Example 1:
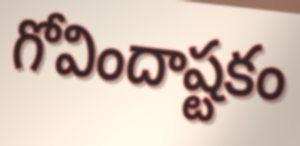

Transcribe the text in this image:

గోవిందాష్టకం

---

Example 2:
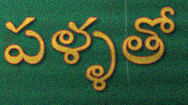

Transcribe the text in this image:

పళ్ళతో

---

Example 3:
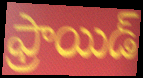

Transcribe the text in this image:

ఫ్రాయిడ్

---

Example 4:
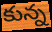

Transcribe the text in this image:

కున్న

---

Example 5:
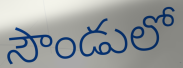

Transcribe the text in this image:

సౌండులో